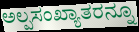
ಅಲ್ಪಸಂಖ್ಯಾತರನ್ನೂ